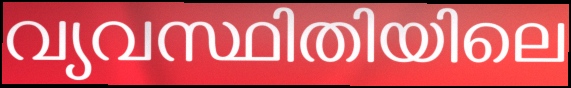
വ്യവസ്ഥിതിയിലെ